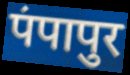
पंपापुर